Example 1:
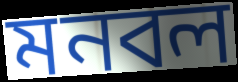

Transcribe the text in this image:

মনবল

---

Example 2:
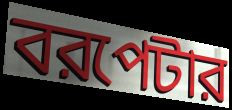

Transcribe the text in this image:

বরপেটার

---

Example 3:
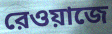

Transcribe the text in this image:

রেওয়াজে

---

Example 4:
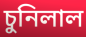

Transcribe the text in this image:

চুনিলাল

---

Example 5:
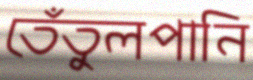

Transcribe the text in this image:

তেঁতুলপানি